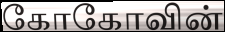
கோகோவின்